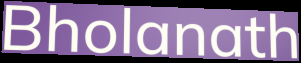
Bholanath